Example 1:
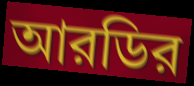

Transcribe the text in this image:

আরডির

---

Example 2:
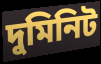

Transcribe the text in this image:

দুমিনিট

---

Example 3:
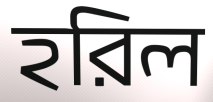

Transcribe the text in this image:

হরিল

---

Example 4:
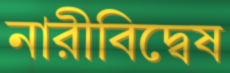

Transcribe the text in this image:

নারীবিদ্বেষ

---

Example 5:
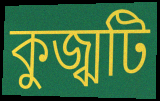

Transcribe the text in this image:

কুজ্ঝটি